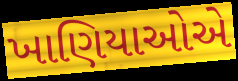
ખાણિયાઓએ